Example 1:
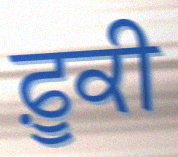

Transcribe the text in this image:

ਫ਼ੂਕੀ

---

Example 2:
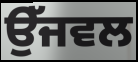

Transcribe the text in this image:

ਉੱਜਵਲ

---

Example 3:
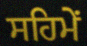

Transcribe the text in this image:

ਸਹਿਮੇਂ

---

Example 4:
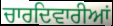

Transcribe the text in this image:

ਚਾਰਦਿਵਾਰੀਆਂ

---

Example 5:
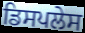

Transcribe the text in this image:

ਡਿਸਪਲੇਸ